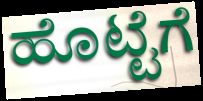
ಹೊಟ್ಟೆಗೆ